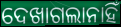
ଦେଖାଗଲାନାହିଁ